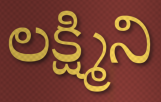
లక్ష్మిని